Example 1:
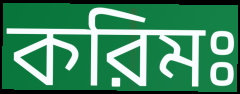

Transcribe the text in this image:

করিমঃ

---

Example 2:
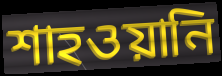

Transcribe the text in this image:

শাহওয়ানি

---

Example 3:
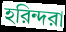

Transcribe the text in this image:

হরিন্দরা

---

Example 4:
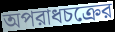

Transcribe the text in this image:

অপরাধচক্রের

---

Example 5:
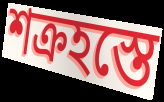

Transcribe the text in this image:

শক্রহস্তে